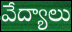
వేద్యాలు